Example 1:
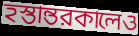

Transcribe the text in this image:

হস্তান্তরকালেও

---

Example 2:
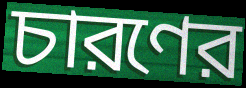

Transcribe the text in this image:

চারণের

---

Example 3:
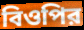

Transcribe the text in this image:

বিওপির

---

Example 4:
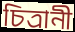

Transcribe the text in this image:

চিত্রানী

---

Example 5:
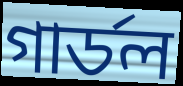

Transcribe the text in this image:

গার্ডল